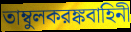
তাম্বুলকরঙ্কবাহিনী